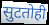
सुटतोही